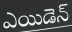
ఎయిడెన్